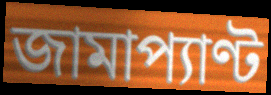
জামাপ্যাণ্ট